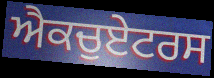
ਐਕਚੁਏਟਰਸ